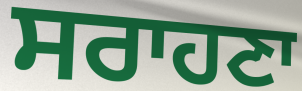
ਸਰਾਹਣਾ